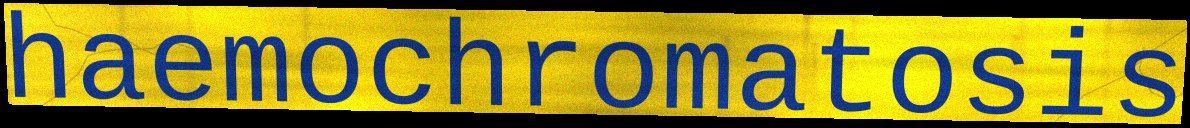
haemochromatosis